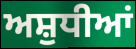
ਅਸ਼ੁਧੀਆਂ